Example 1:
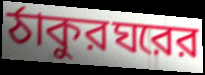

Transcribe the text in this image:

ঠাকুরঘরের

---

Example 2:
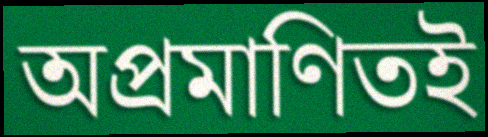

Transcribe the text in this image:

অপ্রমাণিতই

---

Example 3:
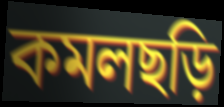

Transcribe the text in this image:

কমলছড়ি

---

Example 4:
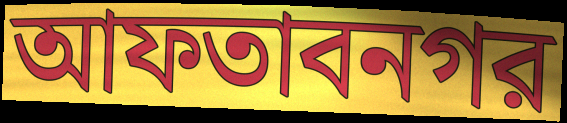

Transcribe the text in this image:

আফতাবনগর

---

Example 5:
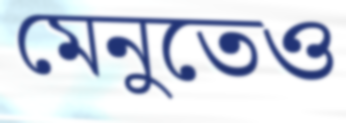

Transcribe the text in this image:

মেনুতেও